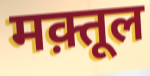
मक़्तूल